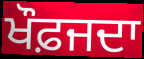
ਖੌਫ਼ਜਦਾ